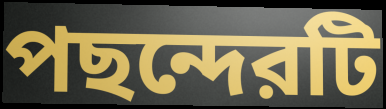
পছন্দেরটি